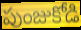
పుంజుకోడి